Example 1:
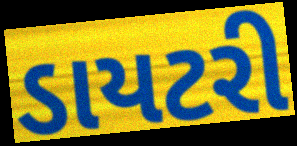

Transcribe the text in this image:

ડાયટરી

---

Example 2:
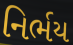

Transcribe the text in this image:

નિર્ભય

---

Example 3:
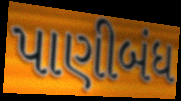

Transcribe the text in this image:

પાણીબંધ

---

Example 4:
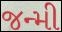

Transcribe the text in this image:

જન્મી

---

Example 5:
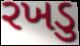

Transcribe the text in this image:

રખડુ